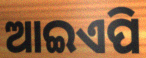
ଆଇଏପି